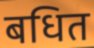
बधित